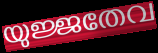
യുജ്ജതേവ